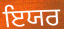
ਇਯਰ